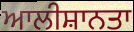
ਆਲੀਸ਼ਾਨਤਾ